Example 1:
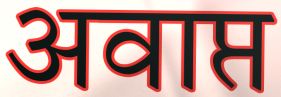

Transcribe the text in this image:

अवाप्त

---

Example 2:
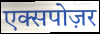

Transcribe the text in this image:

एक्सपोज़र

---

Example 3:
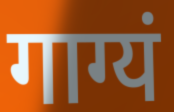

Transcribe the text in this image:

गाग्यं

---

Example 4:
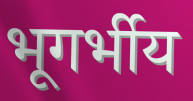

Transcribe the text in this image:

भूगर्भीय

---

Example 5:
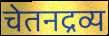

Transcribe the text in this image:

चेतनद्रव्य